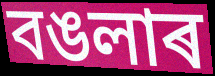
বঙলাৰ